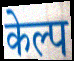
केल्प